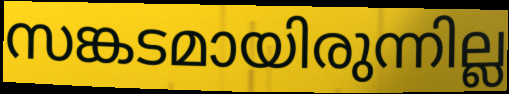
സങ്കടമായിരുന്നില്ല